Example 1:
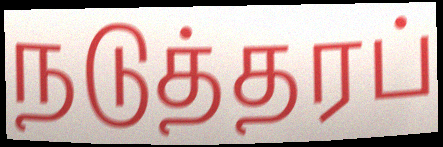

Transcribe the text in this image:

நடுத்தரப்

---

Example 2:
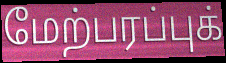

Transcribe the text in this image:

மேற்பரப்புக்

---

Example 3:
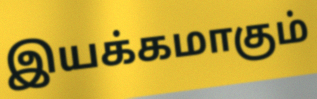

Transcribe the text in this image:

இயக்கமாகும்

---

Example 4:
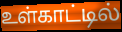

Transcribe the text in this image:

உள்காட்டில்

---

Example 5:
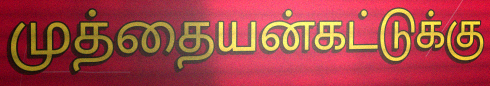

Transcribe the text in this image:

முத்தையன்கட்டுக்கு